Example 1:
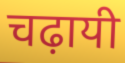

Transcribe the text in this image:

चढ़ायी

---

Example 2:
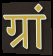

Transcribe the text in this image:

ग्रां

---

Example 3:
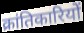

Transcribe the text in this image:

क्रांतिकारियों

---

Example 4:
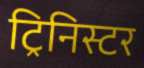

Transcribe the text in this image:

ट्रिनिस्टर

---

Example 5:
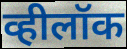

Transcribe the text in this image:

व्हीलॉक